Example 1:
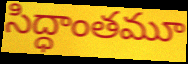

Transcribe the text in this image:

సిద్ధాంతమూ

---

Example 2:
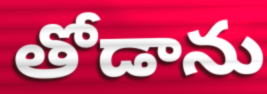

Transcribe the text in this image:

తోడాను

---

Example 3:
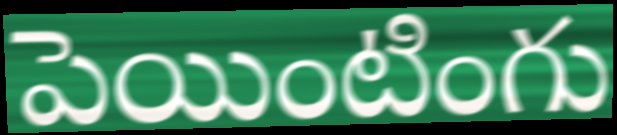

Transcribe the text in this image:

పెయింటింగు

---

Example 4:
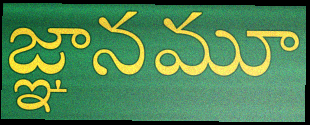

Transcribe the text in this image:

జ్ఞానమూ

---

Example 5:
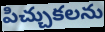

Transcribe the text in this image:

పిచ్చుకలను